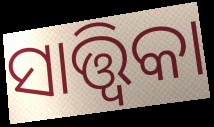
ସାତ୍ତ୍ୱିକା